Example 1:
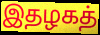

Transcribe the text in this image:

இதழகத்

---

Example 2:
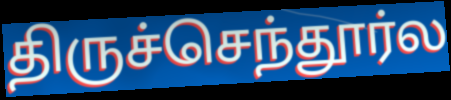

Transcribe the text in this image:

திருச்செந்தூர்ல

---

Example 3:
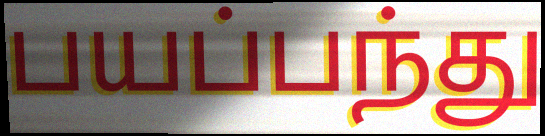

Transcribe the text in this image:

பயப்பந்து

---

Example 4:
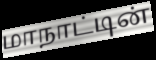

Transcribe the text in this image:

மாநாட்டின்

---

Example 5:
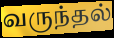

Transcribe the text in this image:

வருந்தல்